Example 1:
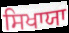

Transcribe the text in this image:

ਸਿਖਾਯਾ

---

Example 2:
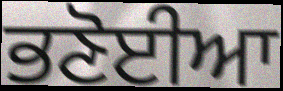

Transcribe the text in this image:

ਭਣੋਈਆ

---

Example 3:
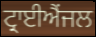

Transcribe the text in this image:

ਟ੍ਰਾਈਐਂਜਲ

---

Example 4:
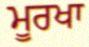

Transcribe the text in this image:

ਮੂਰਖਾ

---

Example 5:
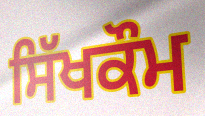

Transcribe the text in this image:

ਸਿੱਖਕੌਮ